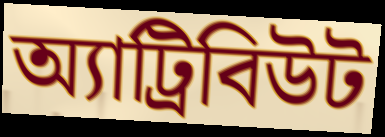
অ্যাট্রিবিউট